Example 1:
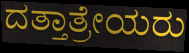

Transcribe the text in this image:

ದತ್ತಾತ್ರೇಯರು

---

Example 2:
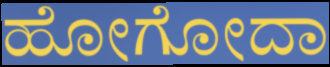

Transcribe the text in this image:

ಹೋಗೋದಾ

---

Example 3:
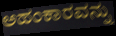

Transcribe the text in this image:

ಅಹಂಕಾರವನ್ನು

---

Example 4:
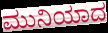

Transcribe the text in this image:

ಮುನಿಯಾದ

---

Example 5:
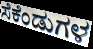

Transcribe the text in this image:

ಸೆಕೆಂಡುಗಳ